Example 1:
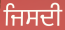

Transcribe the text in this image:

ਜਿਸਦੀ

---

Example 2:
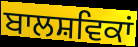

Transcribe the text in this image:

ਬਾਲਸ਼ਵਿਕਾਂ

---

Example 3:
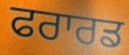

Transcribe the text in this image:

ਫਰਾਰਡ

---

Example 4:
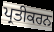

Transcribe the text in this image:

ਪ੍ਰਤੀਕਰਨ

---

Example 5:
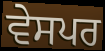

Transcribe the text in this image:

ਵੇਸਪਰ